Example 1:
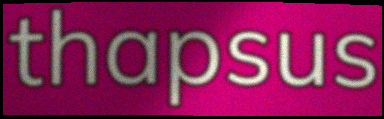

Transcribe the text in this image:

thapsus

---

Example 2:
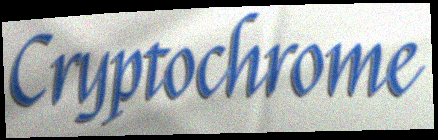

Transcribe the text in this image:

Cryptochrome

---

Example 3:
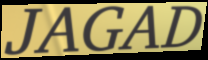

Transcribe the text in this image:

JAGAD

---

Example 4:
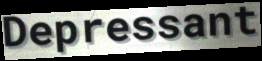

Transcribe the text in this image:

Depressant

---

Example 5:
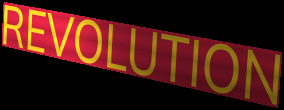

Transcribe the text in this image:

REVOLUTION